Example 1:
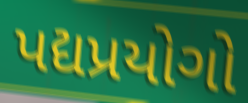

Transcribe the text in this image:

પદ્યપ્રયોગો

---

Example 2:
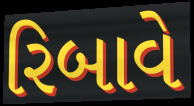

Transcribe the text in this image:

રિબાવે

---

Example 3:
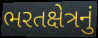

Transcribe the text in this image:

ભરતક્ષેત્રનું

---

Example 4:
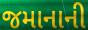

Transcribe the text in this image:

જમાનાની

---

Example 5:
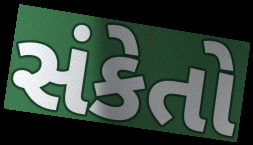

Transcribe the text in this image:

સંકેતો